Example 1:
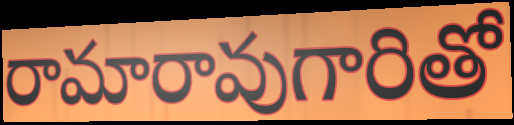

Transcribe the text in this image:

రామారావుగారితో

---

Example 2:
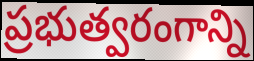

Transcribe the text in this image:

ప్రభుత్వరంగాన్ని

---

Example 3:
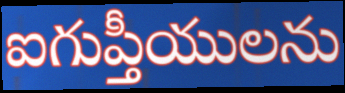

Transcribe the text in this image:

ఐగుప్తీయులను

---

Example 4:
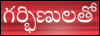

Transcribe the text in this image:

గర్భిణులతో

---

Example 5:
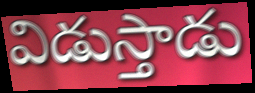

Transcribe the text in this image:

విడుస్తాడు